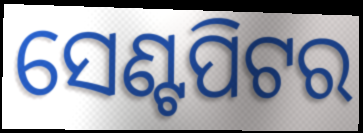
ସେଣ୍ଟପିଟର